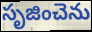
సృజించెను